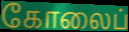
கோலைப்